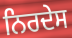
ਨਿਰਦੇਸ